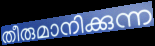
തീരുമാനിക്കുന്ന